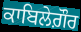
ਕਾਬਿਲੇਗ਼ੌਰ